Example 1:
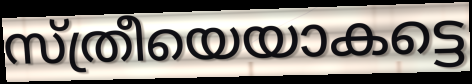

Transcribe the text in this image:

സ്ത്രീയെയാകട്ടെ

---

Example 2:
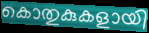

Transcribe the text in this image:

കൊതുകുകളായി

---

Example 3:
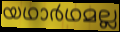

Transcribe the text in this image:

യഥാർഥമല്ല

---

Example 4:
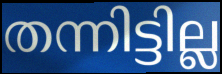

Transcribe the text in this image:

തന്നിട്ടില്ല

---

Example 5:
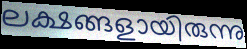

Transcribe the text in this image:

ലക്ഷങ്ങളായിരുന്നു